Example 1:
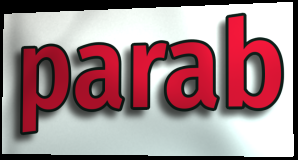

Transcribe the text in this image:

parab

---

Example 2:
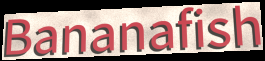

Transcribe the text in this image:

Bananafish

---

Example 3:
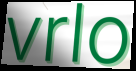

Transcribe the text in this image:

vrlo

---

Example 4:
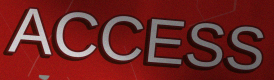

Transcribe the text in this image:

ACCESS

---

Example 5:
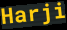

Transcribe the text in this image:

Harji